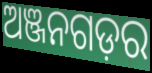
ଅଞ୍ଜନଗଡ଼ର